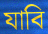
যাবি